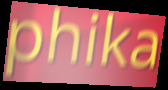
phika